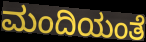
ಮಂದಿಯಂತೆ